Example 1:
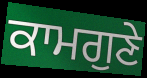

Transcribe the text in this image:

ਕਾਮਗੁਣੇ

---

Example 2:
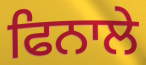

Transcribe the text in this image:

ਫਿਨਾਲੇ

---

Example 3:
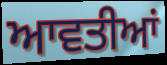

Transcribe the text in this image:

ਆਵਤੀਆਂ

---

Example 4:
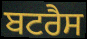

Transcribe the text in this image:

ਬਟਰੈਸ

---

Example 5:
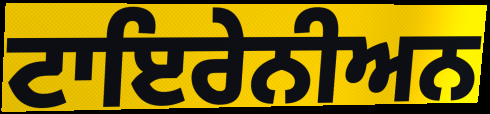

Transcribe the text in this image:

ਟਾਇਰੇਨੀਅਨ